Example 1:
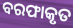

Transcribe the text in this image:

ବରଫାକୃତ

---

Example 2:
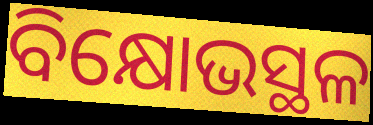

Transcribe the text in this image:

ବିକ୍ଷୋଭସ୍ଥଳ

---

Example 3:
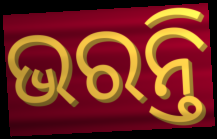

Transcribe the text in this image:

ଭରନ୍ତି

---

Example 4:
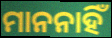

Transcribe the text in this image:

ମାନନାହିଁ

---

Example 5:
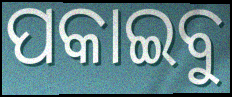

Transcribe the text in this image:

ପକାଇବୁ